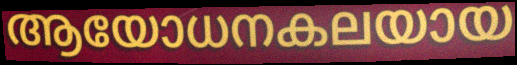
ആയോധനകലയായ